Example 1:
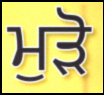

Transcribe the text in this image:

ਮੁਡ਼ੋ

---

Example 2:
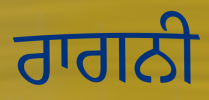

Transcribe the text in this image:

ਰਾਗਨੀ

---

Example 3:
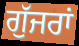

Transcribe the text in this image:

ਗੁੱਜਰਾਂ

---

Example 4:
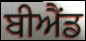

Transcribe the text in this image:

ਬੀਐਂਡ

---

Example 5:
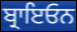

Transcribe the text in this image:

ਬ੍ਰਾਇਓਨ